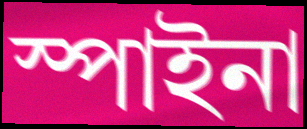
স্পাইনা